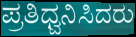
ಪ್ರತಿಧ್ವನಿಸಿದರು